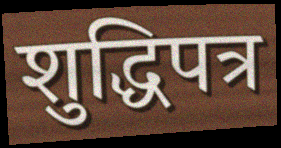
शुद्धिपत्र